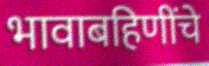
भावाबहिणींचे